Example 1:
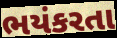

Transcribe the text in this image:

ભયંકરતા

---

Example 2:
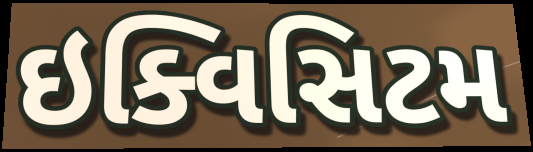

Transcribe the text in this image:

ઇક્વિસિટમ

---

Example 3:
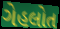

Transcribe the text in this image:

ગેહલોત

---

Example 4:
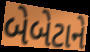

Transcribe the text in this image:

બેબેટાને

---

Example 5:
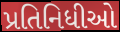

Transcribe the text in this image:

પ્રતિનિધીઓ